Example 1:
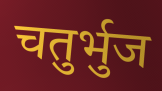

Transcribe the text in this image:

चतुर्भुज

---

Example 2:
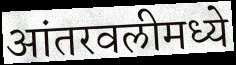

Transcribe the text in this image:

आंतरवलीमध्ये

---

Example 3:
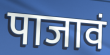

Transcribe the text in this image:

पाजावं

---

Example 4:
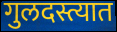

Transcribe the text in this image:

गुलदस्त्यात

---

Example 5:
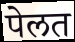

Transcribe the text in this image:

पेलत